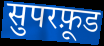
सुपरफ़ूड